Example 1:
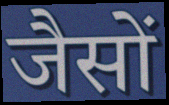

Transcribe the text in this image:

जैसों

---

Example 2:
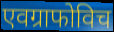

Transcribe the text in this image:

एवग्राफोविच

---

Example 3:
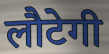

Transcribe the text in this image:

लौटेगी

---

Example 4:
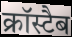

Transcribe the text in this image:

क्रॉस्टैब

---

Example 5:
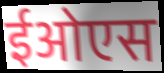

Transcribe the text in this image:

ईओएस